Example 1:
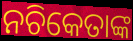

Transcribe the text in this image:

ନଚିକେତାଙ୍କ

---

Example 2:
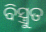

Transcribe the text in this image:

ବିସ୍ତ୍ରୁତ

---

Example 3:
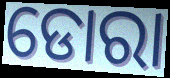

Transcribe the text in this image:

ଡୋରା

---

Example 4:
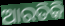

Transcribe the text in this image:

ଆରତିକି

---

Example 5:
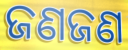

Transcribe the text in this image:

ଜଣଜଣ